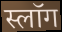
स्लॉग